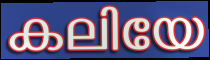
കലിയേ